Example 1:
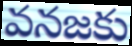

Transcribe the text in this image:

వనజకు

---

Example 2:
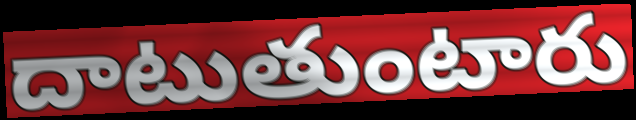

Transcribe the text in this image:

దాటుతుంటారు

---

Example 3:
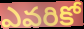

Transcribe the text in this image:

ఎవరికో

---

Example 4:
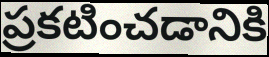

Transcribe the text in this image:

ప్రకటించడానికి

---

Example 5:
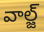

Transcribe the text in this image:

వాల్జ్